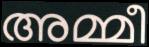
അമ്മീ